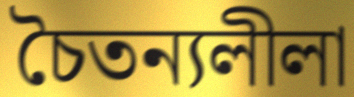
চৈতন্যলীলা